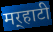
मर्हाटी